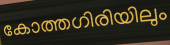
കോത്തഗിരിയിലും